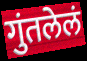
गुंतलेलं